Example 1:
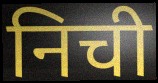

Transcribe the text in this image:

निची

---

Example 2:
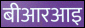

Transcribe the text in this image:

बीआरआइ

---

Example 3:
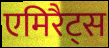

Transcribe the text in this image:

एमिरैट्स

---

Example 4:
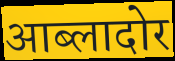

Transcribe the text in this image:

आब्लादोर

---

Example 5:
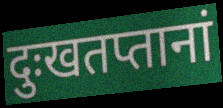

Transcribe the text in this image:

दुःखतप्तानां